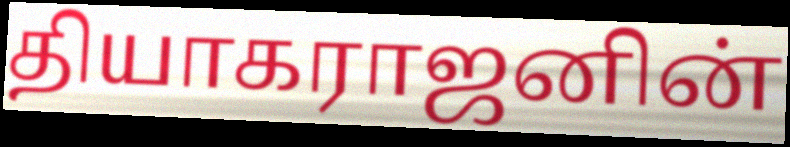
தியாகராஜனின்